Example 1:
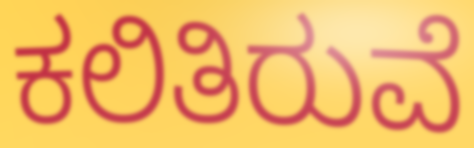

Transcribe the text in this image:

ಕಲಿತಿರುವೆ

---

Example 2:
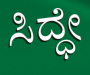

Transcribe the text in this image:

ಸಿದ್ಧೇ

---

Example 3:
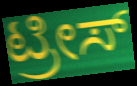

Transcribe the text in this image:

ಟ್ರೀಸ್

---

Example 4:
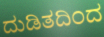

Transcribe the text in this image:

ದುಡಿತದಿಂದ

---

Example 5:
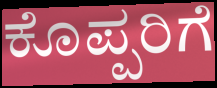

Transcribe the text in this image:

ಕೊಪ್ಪರಿಗೆ